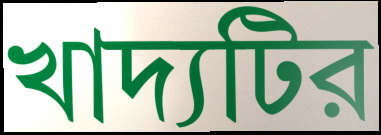
খাদ্যটির